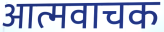
आत्मवाचक